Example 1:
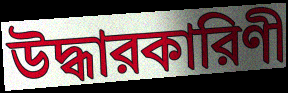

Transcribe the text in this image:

উদ্ধারকারিণী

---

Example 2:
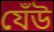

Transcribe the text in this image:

যেঁউ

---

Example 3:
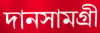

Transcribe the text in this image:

দানসামগ্রী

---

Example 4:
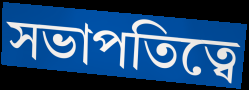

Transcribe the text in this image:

সভাপতিত্বে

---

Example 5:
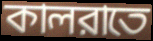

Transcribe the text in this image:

কালরাতে